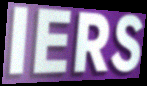
IERS